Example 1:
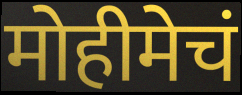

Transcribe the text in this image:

मोहीमेचं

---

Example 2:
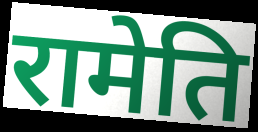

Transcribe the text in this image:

रामेति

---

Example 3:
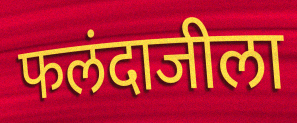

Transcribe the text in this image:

फलंदाजीला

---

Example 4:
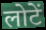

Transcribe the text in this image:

लोटें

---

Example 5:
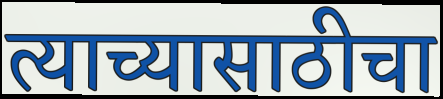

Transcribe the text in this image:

त्याच्यासाठीचा